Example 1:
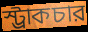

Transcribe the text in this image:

স্ট্রাকচার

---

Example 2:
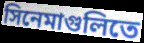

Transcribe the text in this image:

সিনেমাগুলিতে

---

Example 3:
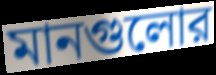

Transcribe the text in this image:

মানগুলোর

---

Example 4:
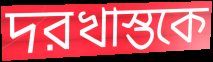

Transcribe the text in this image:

দরখাস্তকে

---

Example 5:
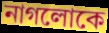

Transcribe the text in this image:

নাগলোকে